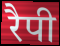
रैपी